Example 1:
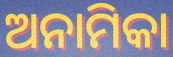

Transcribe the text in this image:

ଅନାମିକା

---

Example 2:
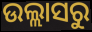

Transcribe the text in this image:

ଉଲ୍ଲାସରୁ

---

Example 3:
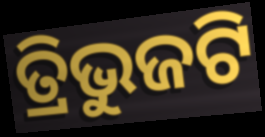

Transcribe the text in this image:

ତ୍ରିଭୁଜଟି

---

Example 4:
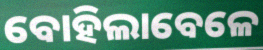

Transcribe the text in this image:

ବୋହିଲାବେଳେ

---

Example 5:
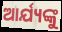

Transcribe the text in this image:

ଆର୍ଯ୍ୟଙ୍କୁ